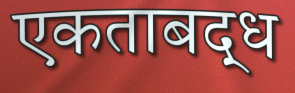
एकताबद्ध